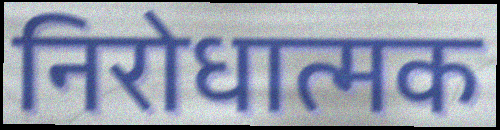
निरोधात्मक